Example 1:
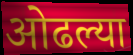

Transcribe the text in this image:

ओढल्या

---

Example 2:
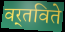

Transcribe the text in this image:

वर्तविते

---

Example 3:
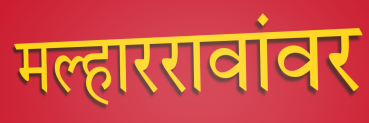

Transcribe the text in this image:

मल्हाररावांवर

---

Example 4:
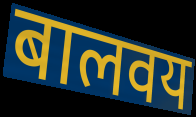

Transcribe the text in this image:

बालवय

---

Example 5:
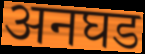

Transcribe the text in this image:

अनघड